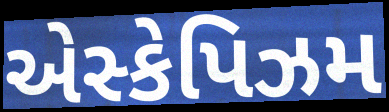
એસ્કેપિઝમ